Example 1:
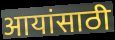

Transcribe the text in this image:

आयांसाठी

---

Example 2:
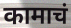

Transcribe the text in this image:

कामाचं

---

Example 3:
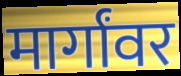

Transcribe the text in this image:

मार्गांवर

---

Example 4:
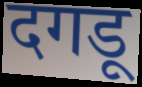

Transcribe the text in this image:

दगडू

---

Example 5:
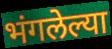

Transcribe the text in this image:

भंगलेल्या